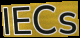
IECs